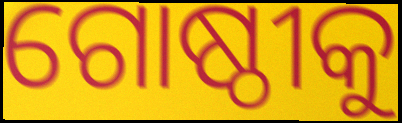
ଗୋଷ୍ଠୀକୁ